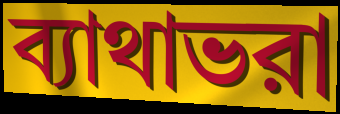
ব্যাথাভরা